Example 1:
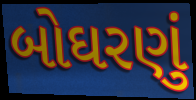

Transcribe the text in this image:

બોઘરણું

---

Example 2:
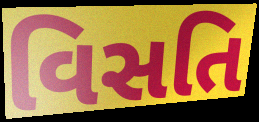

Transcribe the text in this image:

વિસતિ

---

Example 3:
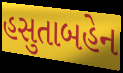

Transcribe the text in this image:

હસુતાબહેન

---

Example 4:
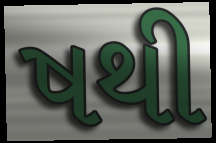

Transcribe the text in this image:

ષથી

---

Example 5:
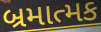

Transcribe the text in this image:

બ્રમાત્મક